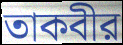
তাকবীর